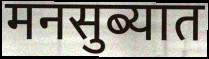
मनसुब्यात